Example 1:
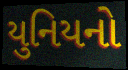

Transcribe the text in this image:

યુનિયનો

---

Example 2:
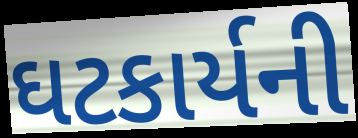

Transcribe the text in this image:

ઘટકાર્યની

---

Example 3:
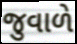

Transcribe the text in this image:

જુવાળે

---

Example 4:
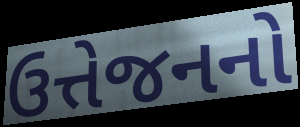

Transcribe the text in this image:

ઉત્તેજનનો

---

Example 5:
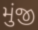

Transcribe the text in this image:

મુંજી